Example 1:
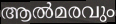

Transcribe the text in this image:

ആൽമരവും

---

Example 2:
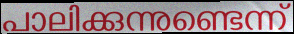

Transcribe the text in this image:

പാലിക്കുന്നുണ്ടെന്ന്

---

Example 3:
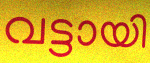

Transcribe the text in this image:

വട്ടായി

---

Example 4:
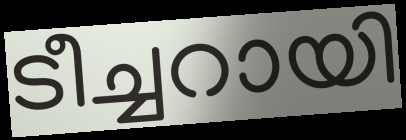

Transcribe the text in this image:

ടീച്ചറായി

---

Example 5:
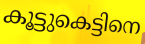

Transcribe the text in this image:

കൂട്ടുകെട്ടിനെ